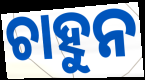
ଚାହୁନ